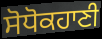
ਸੋਧੋਕਹਾਣੀ